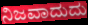
ನಿಜವಾದುದು